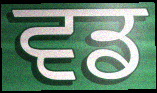
ਵਡ